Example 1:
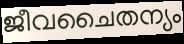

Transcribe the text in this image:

ജീവചൈതന്യം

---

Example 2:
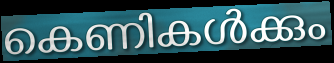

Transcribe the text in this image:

കെണികൾക്കും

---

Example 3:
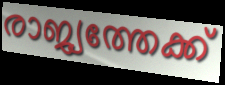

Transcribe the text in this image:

രാജ്യത്തേക്ക്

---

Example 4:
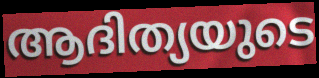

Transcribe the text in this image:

ആദിത്യയുടെ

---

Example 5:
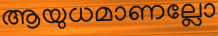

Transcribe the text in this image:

ആയുധമാണല്ലോ